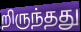
றிருந்தது